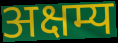
अक्षम्य